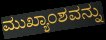
ಮುಖ್ಯಾಂಶವನ್ನು